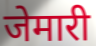
जेमारी